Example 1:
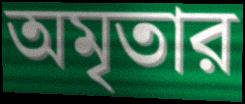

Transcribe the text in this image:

অমৃতার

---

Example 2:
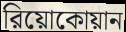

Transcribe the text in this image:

রিয়োকোয়ান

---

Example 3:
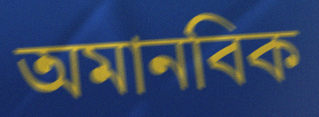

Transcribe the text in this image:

অমানবিক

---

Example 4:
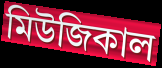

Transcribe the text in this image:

মিউজিকাল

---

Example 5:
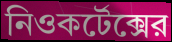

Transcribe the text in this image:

নিওকর্টেক্সের